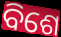
ବିଶେ